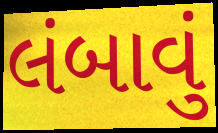
લંબાવું